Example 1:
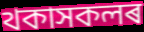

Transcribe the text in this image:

থকাসকলৰ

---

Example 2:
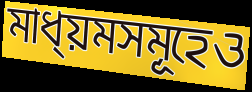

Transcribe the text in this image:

মাধ্য়মসমূহেও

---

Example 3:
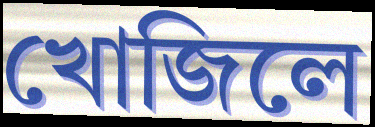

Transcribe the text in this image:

খোজিলে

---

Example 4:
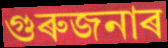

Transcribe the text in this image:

গুৰুজনাৰ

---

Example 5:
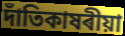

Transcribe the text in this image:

দাঁতিকাষৰীয়া